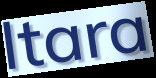
Itara